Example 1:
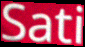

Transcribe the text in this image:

Sati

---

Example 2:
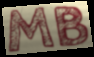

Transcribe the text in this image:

MB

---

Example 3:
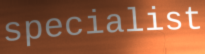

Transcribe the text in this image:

specialist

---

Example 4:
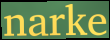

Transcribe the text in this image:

narke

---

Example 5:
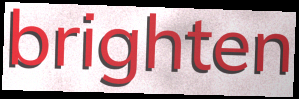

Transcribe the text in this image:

brighten